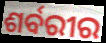
ଶର୍ବରୀର